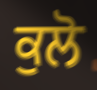
ਕੁਲੋ